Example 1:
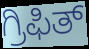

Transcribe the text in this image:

ಗ್ರಿಫಿತ್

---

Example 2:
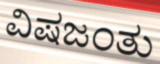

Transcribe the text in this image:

ವಿಷಜಂತು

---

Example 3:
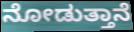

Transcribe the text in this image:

ನೋಡುತ್ತಾನೆ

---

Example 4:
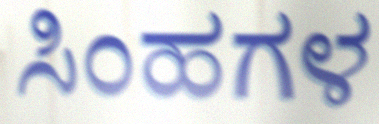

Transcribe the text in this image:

ಸಿಂಹಗಳ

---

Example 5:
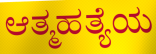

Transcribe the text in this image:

ಆತ್ಮಹತ್ಯೆಯ